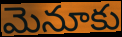
మెనూకు